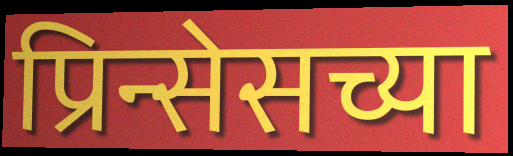
प्रिन्सेसच्या